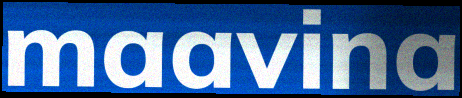
maavina